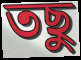
তছু